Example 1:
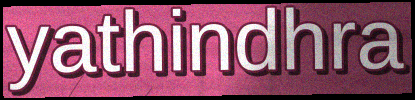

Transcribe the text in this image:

yathindhra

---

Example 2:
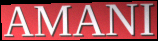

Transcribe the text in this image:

AMANI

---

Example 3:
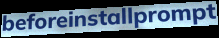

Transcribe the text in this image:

beforeinstallprompt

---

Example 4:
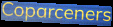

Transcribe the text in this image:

Coparceners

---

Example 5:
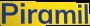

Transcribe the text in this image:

Piramil